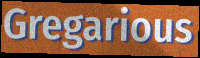
Gregarious